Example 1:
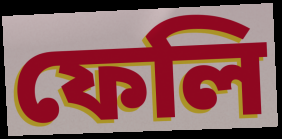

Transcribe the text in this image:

ফেলি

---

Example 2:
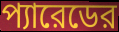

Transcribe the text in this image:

প্যারেডের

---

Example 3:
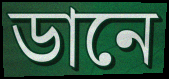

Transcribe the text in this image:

ডানে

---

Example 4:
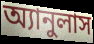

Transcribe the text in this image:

অ্যানুলাস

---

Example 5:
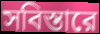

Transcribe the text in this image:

সবিস্তারে